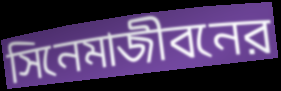
সিনেমাজীবনের